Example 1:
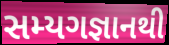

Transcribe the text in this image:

સમ્યગજ્ઞાનથી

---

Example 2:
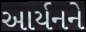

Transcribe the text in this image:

આર્યનને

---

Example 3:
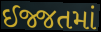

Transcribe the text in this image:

ઈજ્જતમાં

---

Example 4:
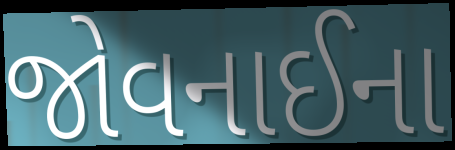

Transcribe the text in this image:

જોવનાઈના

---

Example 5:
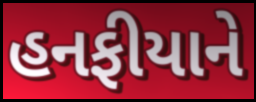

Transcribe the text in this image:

હનફીયાને